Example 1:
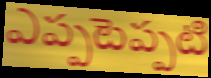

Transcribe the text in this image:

ఎప్పటెప్పటి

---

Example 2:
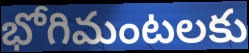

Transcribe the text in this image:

భోగిమంటలకు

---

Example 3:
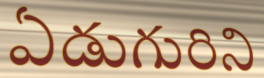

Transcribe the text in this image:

ఏడుగురిని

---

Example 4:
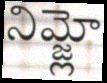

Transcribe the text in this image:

నిమ్జ్లో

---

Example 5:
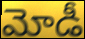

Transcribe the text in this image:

మోడీ